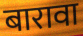
बारावा